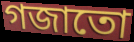
গজাতো